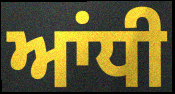
ਆਂਧੀ